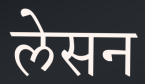
लेसन